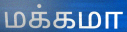
மக்கமா